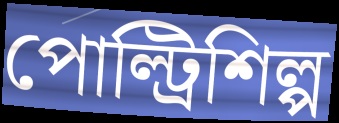
পোল্ট্রিশিল্প